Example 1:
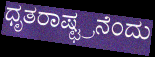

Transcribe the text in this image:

ಧೃತರಾಷ್ಟ್ರನೆಂದು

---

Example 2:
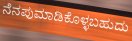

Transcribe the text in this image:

ನೆನಪುಮಾಡಿಕೊಳ್ಳಬಹುದು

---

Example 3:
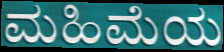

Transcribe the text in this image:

ಮಹಿಮೆಯ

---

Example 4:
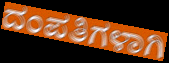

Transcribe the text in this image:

ದಂಪತಿಗಳಾಗಿ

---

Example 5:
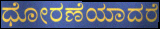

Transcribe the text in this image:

ಧೋರಣೆಯಾದರೆ